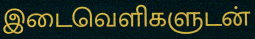
இடைவெளிகளுடன்